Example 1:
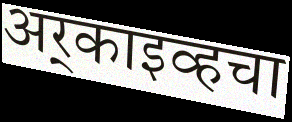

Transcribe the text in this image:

अर्काइव्हचा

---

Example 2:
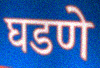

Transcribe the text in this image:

घडणे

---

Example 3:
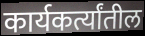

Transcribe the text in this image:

कार्यकर्त्यांतील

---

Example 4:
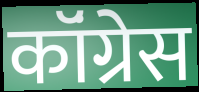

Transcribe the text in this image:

कॉंग्रेस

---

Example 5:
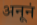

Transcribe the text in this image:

अनूनं